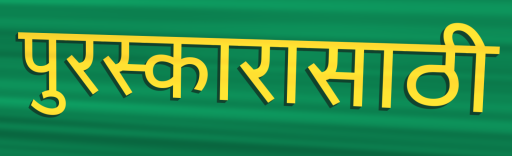
पुरस्कारासाठी